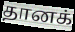
தானக்